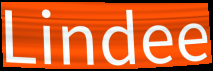
Lindee